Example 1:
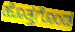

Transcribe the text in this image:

ಹೊತ್ತಗೊಂಡ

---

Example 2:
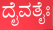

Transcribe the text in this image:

ದೈವತೈಃ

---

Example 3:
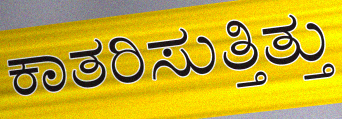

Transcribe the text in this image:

ಕಾತರಿಸುತ್ತಿತ್ತು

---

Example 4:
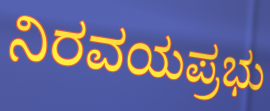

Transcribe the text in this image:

ನಿರವಯಪ್ರಭು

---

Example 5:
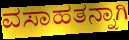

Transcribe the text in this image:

ವಸಾಹತನ್ನಾಗಿ